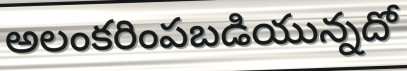
అలంకరింపబడియున్నదో